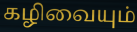
கழிவையும்